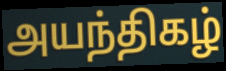
அயந்திகழ்